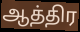
ஆத்திர